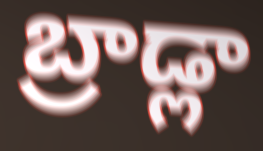
బ్రాడ్లా